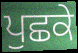
ਪੁਛਕੇ